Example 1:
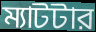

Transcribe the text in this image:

ম্যাটটার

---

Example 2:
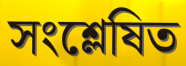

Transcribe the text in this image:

সংশ্লেষিত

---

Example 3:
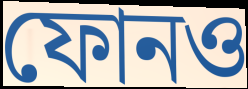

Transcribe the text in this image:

ফোনও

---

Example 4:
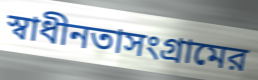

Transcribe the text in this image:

স্বাধীনতাসংগ্রামের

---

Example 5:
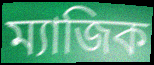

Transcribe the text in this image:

ম্যাজিক